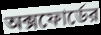
অক্সফোর্ডের